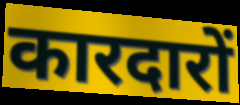
कारदारों